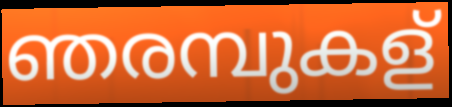
ഞരമ്പുകള്